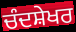
ਚੰਦਸ਼ੇਖਰ